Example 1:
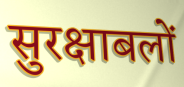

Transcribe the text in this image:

सुरक्षाबलों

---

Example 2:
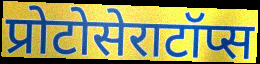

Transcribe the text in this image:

प्रोटोसेराटॉप्स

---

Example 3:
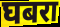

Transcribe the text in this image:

घबरा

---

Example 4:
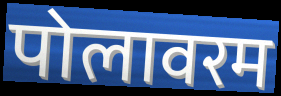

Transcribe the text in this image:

पोलावरम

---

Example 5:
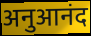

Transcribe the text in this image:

अनुआनंद